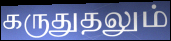
கருதுதலும்